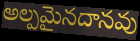
అల్పమైనదానవు